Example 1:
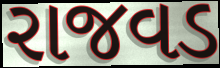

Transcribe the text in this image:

રાજવડ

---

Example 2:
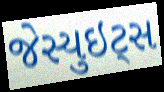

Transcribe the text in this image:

જેસ્યુઇટ્સ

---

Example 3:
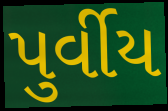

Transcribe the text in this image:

પુર્વીય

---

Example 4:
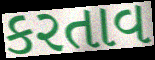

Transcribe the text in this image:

કરતાવ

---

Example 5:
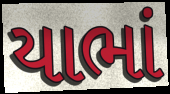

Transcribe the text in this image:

યાભાં